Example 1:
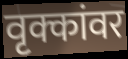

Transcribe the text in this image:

वृक्कांवर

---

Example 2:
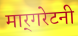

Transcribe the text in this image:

मार्गरेटनी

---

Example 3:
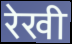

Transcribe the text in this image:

रेखी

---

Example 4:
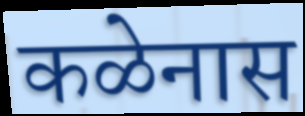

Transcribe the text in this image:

कळेनास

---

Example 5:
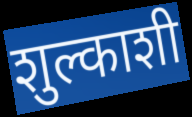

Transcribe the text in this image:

शुल्काशी